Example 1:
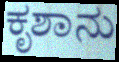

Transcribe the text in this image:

ಕೃಶಾನು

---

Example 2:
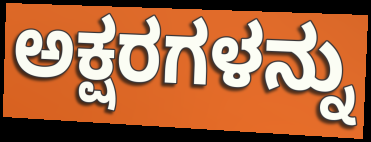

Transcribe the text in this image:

ಅಕ್ಷರಗಳನ್ನು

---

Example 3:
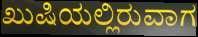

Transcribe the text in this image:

ಖುಷಿಯಲ್ಲಿರುವಾಗ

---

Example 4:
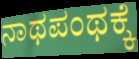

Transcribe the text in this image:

ನಾಥಪಂಥಕ್ಕೆ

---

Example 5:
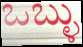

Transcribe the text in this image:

ಒಬ್ಳು